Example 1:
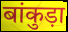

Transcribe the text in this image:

बांकुड़ा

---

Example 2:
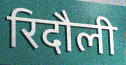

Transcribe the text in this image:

रिदौली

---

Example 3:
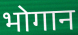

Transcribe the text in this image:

भोगान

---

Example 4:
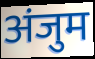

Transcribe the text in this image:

अंजुम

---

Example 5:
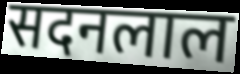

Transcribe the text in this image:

सदनलाल